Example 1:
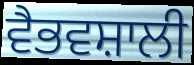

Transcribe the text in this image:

ਵੈਭਵਸ਼ਾਲੀ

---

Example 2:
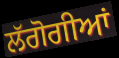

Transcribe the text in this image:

ਲੱਗੋਗੀਆਂ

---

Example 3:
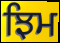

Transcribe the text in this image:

ਝਿਮ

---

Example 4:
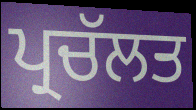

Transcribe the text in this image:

ਪ੍ਰਚੱਲਤ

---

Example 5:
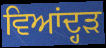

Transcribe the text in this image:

ਵਿਆਂਦ੍ਹੜ